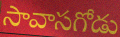
సావాసగోడు